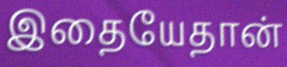
இதையேதான்